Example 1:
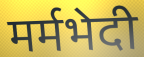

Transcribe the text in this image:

मर्मभेदी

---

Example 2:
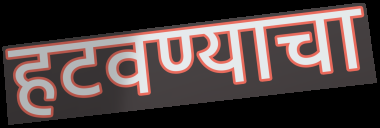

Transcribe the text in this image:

हटवण्याचा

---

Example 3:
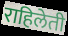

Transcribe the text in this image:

राहिलेती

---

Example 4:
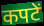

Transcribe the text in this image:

कपटें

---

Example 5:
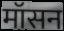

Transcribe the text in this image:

मॉसन